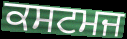
ਕਸਟਮਜ